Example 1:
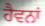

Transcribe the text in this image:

ਹੈਵਨਾਂ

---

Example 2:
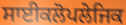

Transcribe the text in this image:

ਸਾਈਕਲੋਪਲੇਜਿਕ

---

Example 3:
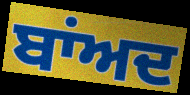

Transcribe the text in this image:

ਬਾਂਅਦ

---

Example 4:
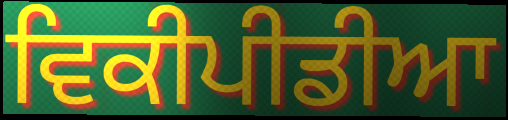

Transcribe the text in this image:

ਵਿਕੀਪੀਡੀਆ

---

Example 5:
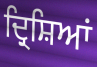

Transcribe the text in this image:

ਦ੍ਰਿਸ਼ਿਆਂ